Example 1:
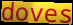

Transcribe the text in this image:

doves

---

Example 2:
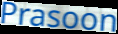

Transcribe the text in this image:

Prasoon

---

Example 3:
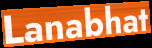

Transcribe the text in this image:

Lanabhat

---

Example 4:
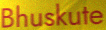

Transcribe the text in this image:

Bhuskute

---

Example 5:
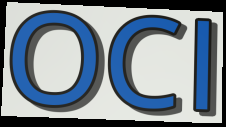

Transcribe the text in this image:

OCI